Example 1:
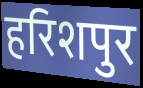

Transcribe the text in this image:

हरिशपुर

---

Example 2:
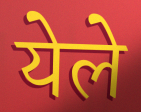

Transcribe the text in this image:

येले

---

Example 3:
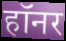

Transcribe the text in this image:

हॉनर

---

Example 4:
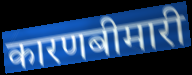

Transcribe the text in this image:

कारणबीमारी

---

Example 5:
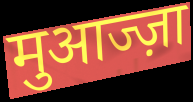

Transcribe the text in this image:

मुआज्ज़ा